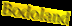
Bodoland